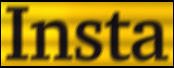
Insta